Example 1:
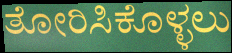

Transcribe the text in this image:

ತೋರಿಸಿಕೊಳ್ಳಲು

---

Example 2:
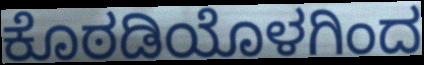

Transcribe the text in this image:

ಕೊಠಡಿಯೊಳಗಿಂದ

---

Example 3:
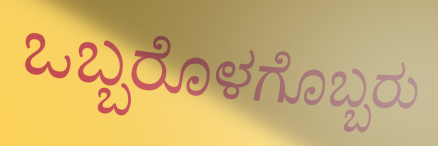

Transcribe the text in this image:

ಒಬ್ಬರೊಳಗೊಬ್ಬರು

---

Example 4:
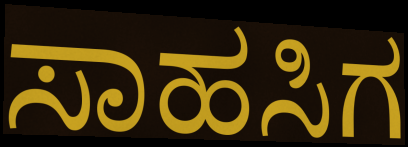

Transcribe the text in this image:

ಸಾಹಸಿಗ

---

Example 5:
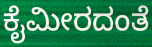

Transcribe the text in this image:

ಕೈಮೀರದಂತೆ